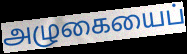
அழுகையைப்